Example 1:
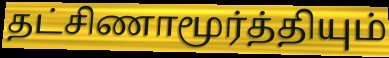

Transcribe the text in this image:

தட்சிணாமூர்த்தியும்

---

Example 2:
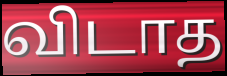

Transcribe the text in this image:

விடாத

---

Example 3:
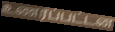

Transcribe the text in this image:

உணரப்பட்டன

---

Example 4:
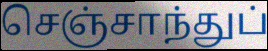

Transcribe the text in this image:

செஞ்சாந்துப்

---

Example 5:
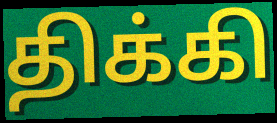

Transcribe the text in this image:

திக்கி